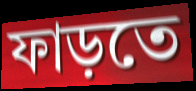
ফাড়তে